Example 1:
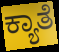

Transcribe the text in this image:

ಕ್ಯಾತೆ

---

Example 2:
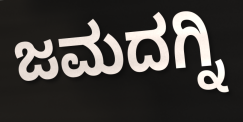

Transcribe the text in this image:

ಜಮದಗ್ನಿ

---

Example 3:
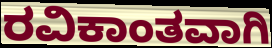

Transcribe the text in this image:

ರವಿಕಾಂತವಾಗಿ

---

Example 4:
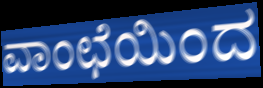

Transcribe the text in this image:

ವಾಂಛೆಯಿಂದ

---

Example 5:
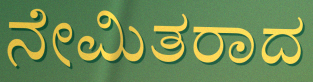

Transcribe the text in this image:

ನೇಮಿತರಾದ